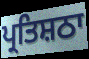
ਪ੍ਰਤਿਸ਼ਠਾ